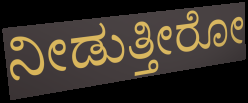
ನೀಡುತ್ತೀರೋ